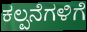
ಕಲ್ಪನೆಗಳಿಗೆ